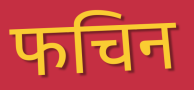
फचिन